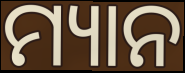
ମ୍ୟାନ